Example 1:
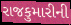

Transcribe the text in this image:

રાજકુમારીની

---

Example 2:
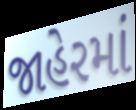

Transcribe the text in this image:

જાહેરમાં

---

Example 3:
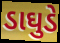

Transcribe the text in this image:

ડાઘુડે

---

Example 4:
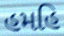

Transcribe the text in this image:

હમહિ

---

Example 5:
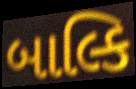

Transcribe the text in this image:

બાલ્કિ